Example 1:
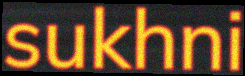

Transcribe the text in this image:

sukhni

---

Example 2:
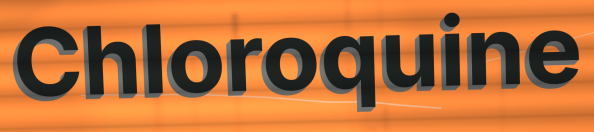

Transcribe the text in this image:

Chloroquine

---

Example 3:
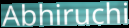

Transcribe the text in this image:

Abhiruchi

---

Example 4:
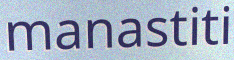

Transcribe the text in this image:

manastiti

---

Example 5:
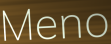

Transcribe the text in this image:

Meno